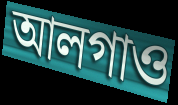
আলগাও